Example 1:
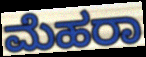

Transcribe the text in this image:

ಮೆಹರಾ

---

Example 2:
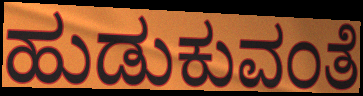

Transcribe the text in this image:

ಹುಡುಕುವಂತೆ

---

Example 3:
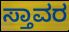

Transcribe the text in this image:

ಸ್ತಾವರ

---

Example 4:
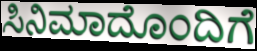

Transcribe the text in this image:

ಸಿನಿಮಾದೊಂದಿಗೆ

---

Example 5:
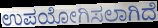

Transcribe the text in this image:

ಉಪಯೋಗಿಸಲಾಗಿದೆ